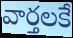
వార్తలకే